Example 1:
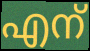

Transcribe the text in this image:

എന്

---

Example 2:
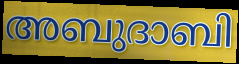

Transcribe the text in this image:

അബുദാബി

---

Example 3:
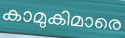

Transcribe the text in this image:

കാമുകിമാരെ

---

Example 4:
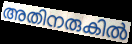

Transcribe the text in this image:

അതിനരുകിൽ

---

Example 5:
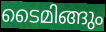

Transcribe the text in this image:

ടൈമിങ്ങും